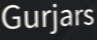
Gurjars